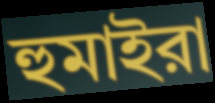
হুমাইরা